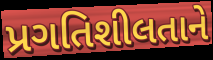
પ્રગતિશીલતાને